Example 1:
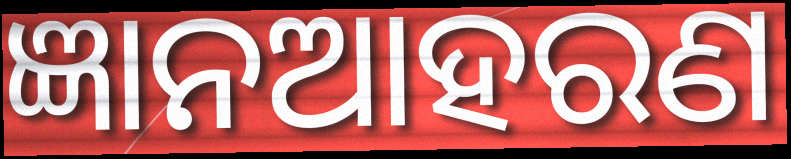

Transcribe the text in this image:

ଜ୍ଞାନଆହରଣ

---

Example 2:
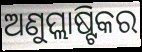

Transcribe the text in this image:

ଅଣୁପ୍ଲାଷ୍ଟିକର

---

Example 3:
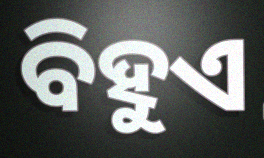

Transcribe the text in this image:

ବିହୁଏ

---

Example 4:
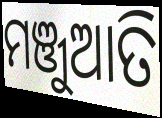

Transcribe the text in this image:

ମଞ୍ଜୁଆତି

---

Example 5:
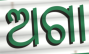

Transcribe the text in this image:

ଅଗା